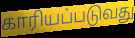
காரியப்படுவது